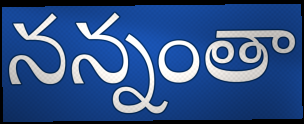
నన్నంతా